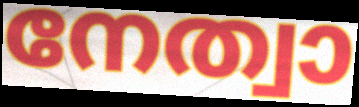
നേത്വാ